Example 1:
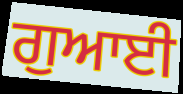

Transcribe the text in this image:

ਗੁਆਈ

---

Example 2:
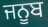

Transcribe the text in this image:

ਜਨੂਬ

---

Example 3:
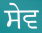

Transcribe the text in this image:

ਸੇਵ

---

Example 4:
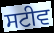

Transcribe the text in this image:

ਸਟੀਵ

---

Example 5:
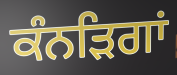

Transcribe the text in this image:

ਕੰਨੜਿਗਾਂ